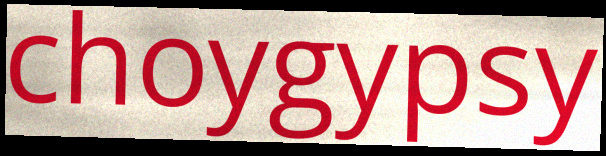
choygypsy